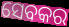
ସେବକର